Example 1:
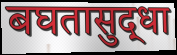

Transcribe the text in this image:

बघतासुद्धा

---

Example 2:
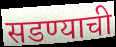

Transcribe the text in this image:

सडण्याची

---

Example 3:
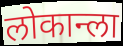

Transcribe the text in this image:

लोकान्ला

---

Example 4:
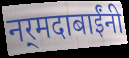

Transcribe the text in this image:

नर्मदाबाईंनी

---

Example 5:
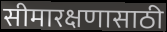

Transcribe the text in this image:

सीमारक्षणासाठी